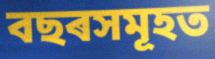
বছৰসমূহত